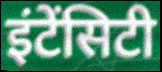
इंटेंसिटी